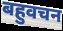
बहुवचन